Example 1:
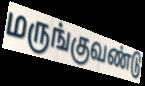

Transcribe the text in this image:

மருங்குவண்டு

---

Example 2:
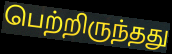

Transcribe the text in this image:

பெற்றிருந்தது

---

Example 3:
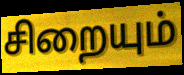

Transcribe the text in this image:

சிறையும்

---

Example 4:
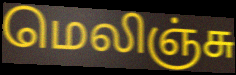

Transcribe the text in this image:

மெலிஞ்சு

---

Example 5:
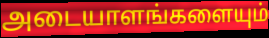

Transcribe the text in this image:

அடையாளங்களையும்